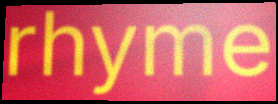
rhyme